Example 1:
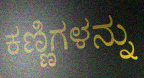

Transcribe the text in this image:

ಕಣ್ಣಿಗಳನ್ನು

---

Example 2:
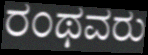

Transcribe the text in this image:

ರಂಥವರು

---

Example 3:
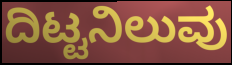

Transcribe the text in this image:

ದಿಟ್ಟನಿಲುವು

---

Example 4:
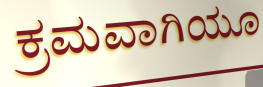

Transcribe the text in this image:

ಕ್ರಮವಾಗಿಯೂ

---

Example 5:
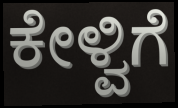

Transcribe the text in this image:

ಕೇಳ್ವಿಗೆ